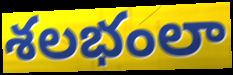
శలభంలా